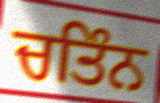
ਚਤਿੰਨ